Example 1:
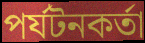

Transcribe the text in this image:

পর্যটনকর্তা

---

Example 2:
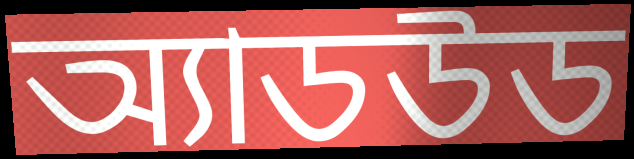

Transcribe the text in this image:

অ্যাডউড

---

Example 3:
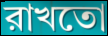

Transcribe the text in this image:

রাখতো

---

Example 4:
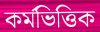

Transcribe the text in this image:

কর্মভিত্তিক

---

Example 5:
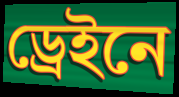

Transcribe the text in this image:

ড্রেইনে